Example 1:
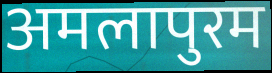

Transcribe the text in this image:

अमलापुरम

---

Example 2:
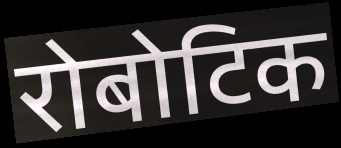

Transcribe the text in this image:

रोबोटिक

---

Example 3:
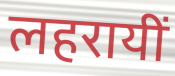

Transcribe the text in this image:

लहरायीं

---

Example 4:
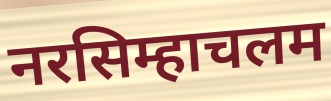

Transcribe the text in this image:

नरसिम्हाचलम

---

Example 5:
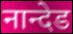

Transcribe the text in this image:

नान्देड